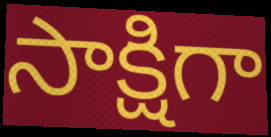
సాక్షిగా